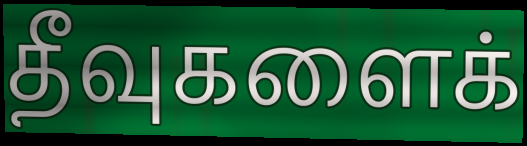
தீவுகளைக்